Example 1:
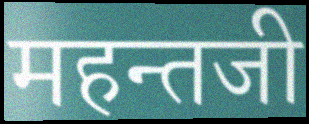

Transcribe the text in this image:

महन्तजी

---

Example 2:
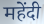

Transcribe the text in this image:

महेंदी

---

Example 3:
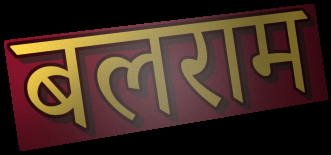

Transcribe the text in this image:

बलराम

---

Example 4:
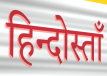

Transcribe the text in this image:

हिन्दोस्ताँ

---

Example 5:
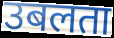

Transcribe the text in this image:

उबलता